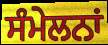
ਸੰਮੇਲਨਾਂ